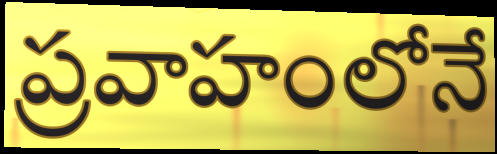
ప్రవాహంలోనే